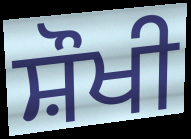
ਸ਼ੌਖੀ